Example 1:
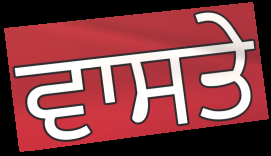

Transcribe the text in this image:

ਵਾਸਤੇ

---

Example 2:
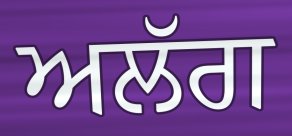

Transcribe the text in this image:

ਅਲੱਗ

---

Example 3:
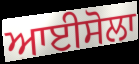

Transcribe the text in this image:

ਆਈਸੋਲਾ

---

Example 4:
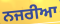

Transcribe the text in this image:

ਨਜਰੀਆ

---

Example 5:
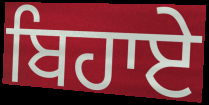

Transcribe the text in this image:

ਬਿਹਾਏ